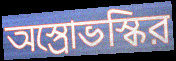
অস্ত্রোভস্কির